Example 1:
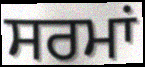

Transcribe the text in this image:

ਸਰਮਾਂ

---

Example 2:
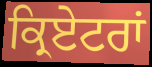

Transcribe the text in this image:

ਕ੍ਰਿਏਟਰਾਂ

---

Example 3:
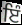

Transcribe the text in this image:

ਇੰ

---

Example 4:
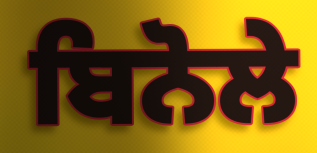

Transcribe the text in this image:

ਬਿਨੋਲੇ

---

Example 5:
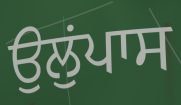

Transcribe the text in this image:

ਉਲੁਂਪਾਸ